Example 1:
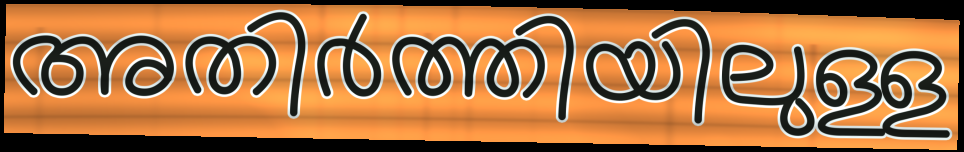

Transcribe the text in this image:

അതിർത്തിയിലുള്ള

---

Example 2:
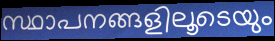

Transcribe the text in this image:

സ്ഥാപനങ്ങളിലൂടെയും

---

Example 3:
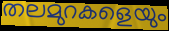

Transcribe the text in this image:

തലമുറകളെയും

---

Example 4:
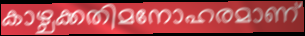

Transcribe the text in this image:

കാഴ്ചക്കതിമനോഹരമാണ്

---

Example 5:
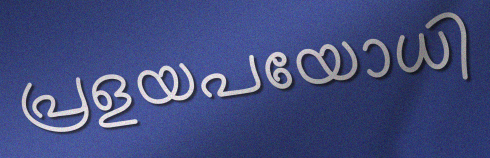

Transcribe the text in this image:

പ്രളയപയോധി